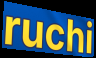
ruchi